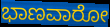
ಭಾಣವಾರೋ